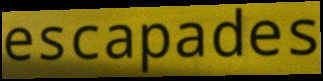
escapades